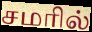
சமரில்